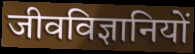
जीवविज्ञानियों